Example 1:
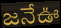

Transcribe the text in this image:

జనేఊ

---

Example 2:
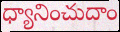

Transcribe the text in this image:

ధ్యానించుదాం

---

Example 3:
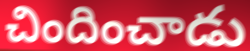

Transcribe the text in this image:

చిందించాడు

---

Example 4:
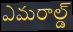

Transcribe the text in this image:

ఎమరాల్డ్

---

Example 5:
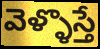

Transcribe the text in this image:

వెళ్ళొస్తే